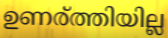
ഉണര്ത്തിയില്ല